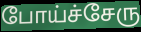
போய்ச்சேரு